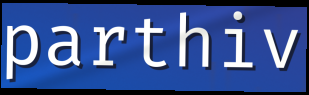
parthiv